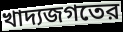
খাদ্যজগতের